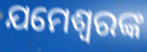
ଯମେଶ୍ୱରଙ୍କ